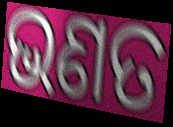
ଭଣତ